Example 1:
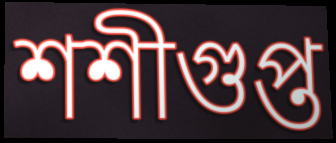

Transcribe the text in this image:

শশীগুপ্ত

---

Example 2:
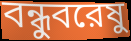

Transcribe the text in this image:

বন্ধুবরেষু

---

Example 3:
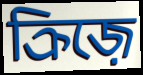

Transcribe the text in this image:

ক্রিজ়ে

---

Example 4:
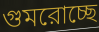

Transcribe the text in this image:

গুমরোচ্ছে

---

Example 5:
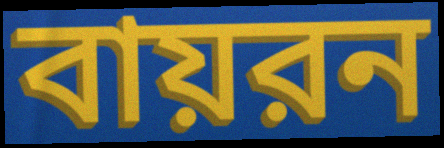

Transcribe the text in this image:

বায়রন